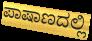
ಪಾಷಾಣದಲ್ಲಿ